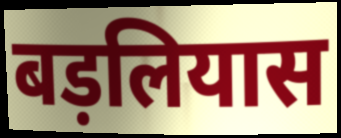
बड़लियास